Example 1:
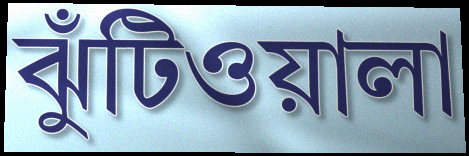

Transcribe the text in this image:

ঝুঁটিওয়ালা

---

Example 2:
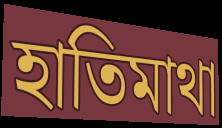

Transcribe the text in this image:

হাতিমাথা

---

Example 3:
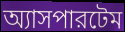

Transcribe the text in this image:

অ্যাসপারটেম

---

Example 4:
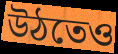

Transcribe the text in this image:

উঠতেও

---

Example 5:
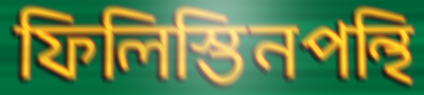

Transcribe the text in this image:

ফিলিস্তিনপন্থি